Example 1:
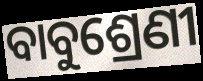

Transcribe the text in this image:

ବାବୁଶ୍ରେଣୀ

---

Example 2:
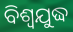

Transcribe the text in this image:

ବିଶ୍ୱଯୁଦ୍ଧ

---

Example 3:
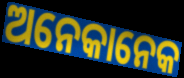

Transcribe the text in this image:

ଅନେକାନେକ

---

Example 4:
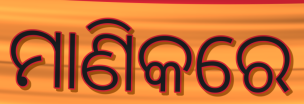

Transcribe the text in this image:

ମାଣିକରେ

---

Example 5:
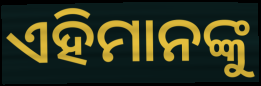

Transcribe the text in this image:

ଏହିମାନଙ୍କୁ